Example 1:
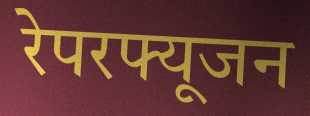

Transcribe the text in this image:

रेपरफ्यूजन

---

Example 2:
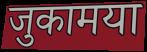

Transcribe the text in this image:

जुकामया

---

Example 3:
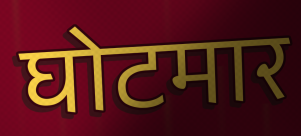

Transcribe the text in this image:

घोटमार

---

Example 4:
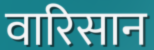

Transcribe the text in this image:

वारिसान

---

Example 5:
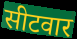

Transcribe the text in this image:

सीटवार